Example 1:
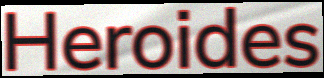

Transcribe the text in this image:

Heroides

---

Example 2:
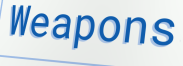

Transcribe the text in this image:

Weapons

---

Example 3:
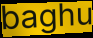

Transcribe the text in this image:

baghu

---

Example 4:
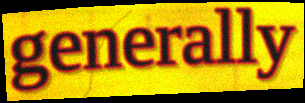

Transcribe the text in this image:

generally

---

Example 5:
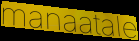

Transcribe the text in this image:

manaatale